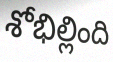
శోభిల్లింది